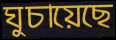
ঘুচায়েছে